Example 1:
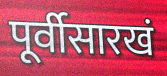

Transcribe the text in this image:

पूर्वीसारखं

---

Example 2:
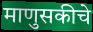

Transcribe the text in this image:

माणुसकीचे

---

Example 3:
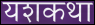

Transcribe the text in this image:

यशकथा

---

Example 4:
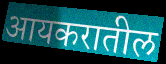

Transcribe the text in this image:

आयकरातील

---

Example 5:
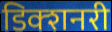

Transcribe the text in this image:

डिक्शनरी